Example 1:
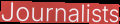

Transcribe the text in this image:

Journalists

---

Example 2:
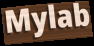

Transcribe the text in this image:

Mylab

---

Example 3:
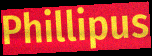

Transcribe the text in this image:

Phillipus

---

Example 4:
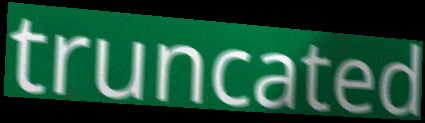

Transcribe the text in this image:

truncated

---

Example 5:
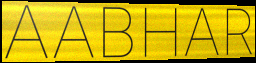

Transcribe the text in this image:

AABHAR